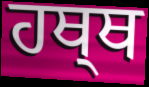
ਹਥ੍ਥ